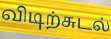
விடிற்சுடல்